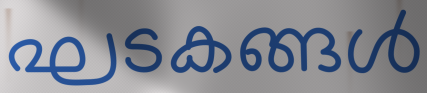
ഘടകങ്ങൾ